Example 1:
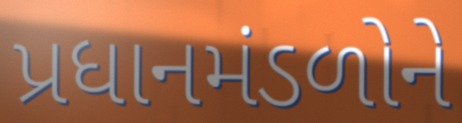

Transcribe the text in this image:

પ્રધાનમંડળોને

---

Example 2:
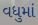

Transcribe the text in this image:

વધુમાં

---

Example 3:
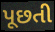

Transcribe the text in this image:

પૂછતી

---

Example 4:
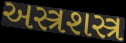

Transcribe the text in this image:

અસ્ત્રશસ્ત્ર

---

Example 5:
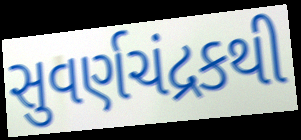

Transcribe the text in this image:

સુવર્ણચંદ્રકથી